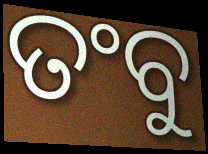
ତଂବୁ